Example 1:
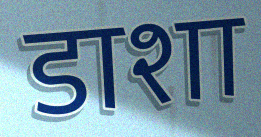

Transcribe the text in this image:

डाशा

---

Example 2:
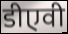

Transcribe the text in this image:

डीएवी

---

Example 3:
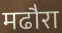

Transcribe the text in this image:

मढौरा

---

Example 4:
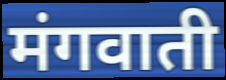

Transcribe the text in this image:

मंगवाती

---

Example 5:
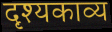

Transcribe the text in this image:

दृश्यकाव्य